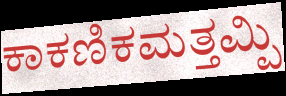
ಕಾಕಣಿಕಮತ್ತಮ್ಪಿ